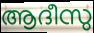
ആദീസു